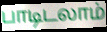
பாடிடலாம்